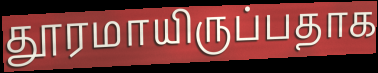
தூரமாயிருப்பதாக